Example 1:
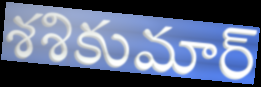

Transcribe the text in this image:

శశికుమార్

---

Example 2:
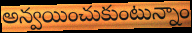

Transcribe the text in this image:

అన్వయించుకుంటున్నాం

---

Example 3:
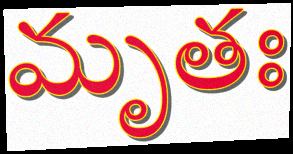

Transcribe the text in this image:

మృతః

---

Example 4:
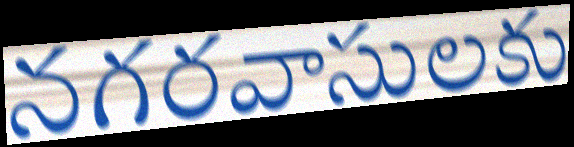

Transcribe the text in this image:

నగరవాసులకు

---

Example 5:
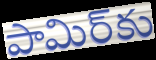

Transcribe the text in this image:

పామిర్‌కు